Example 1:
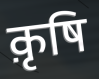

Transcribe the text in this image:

क़ृषि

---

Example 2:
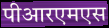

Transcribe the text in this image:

पीआरएमएस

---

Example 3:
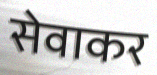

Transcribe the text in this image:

सेवाकर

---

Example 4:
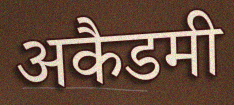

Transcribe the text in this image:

अकैडमी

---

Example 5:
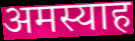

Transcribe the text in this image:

अमस्याह